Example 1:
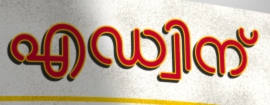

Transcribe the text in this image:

എഡ്വിന്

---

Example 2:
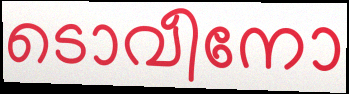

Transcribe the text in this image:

ടൊവീനോ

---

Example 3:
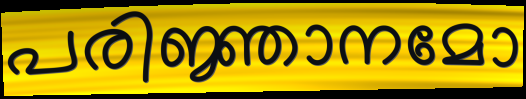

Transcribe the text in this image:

പരിജ്ഞാനമോ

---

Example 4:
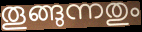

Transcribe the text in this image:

തൂങ്ങുന്നതും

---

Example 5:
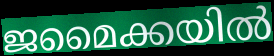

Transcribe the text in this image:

ജമൈക്കയിൽ